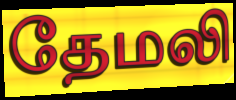
தேமலி